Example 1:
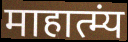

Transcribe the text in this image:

माहात्म्यं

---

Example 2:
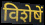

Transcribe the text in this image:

विशेषें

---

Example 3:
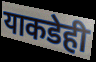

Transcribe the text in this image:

याकडेही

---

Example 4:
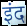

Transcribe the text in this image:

इंद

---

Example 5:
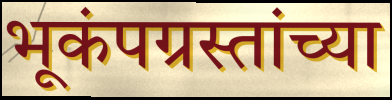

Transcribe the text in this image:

भूकंपग्रस्तांच्या